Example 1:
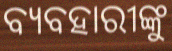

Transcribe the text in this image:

ବ୍ୟବହାରୀଙ୍କୁ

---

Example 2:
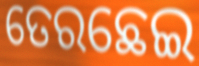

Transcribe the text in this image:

ତେରଛେଇ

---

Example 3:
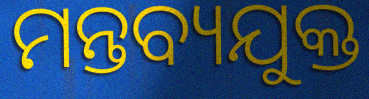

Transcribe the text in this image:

ମନ୍ତବ୍ୟଯୁକ୍ତ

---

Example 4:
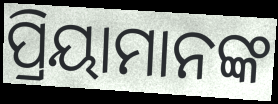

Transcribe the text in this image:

ପ୍ରିୟାମାନଙ୍କ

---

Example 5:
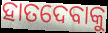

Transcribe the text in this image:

ହାତଦେବାକୁ